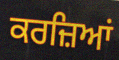
ਕਰਜ਼ਿਆਂ